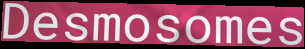
Desmosomes